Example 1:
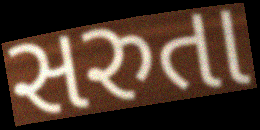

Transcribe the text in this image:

સરુતા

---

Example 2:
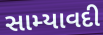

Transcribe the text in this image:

સામ્યાવદી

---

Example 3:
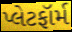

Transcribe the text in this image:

પ્લેટફૉર્મ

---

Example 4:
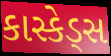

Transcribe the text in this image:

કાસ્કેડ્સ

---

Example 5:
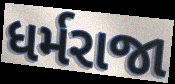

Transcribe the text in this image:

ધર્મરાજા